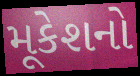
મૂકેશનો